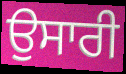
ਉਸਾਰੀ